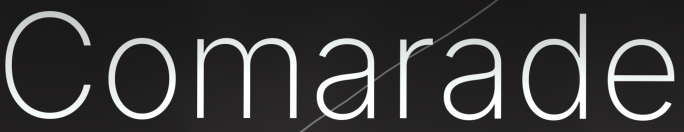
Comarade